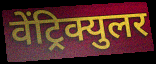
वेंट्रिक्युलर